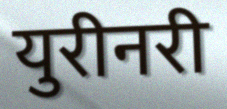
युरीनरी